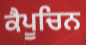
ਕੈਪੂਚਿਨ